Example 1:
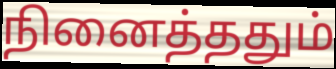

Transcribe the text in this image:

நினைத்ததும்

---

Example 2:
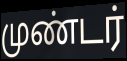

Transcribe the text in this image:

முண்டர்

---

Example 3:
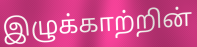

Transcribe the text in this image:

இழுக்காற்றின்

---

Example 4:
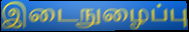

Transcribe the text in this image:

இடைநுழைப்பு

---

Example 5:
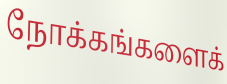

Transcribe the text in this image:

நோக்கங்களைக்